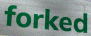
forked